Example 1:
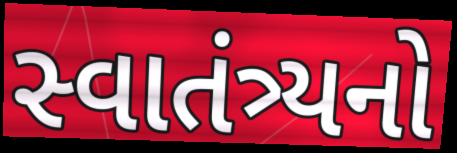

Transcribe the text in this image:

સ્વાતંત્ર્યનો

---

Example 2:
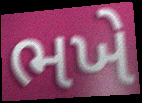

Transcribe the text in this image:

ભખે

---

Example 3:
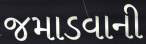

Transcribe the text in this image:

જમાડવાની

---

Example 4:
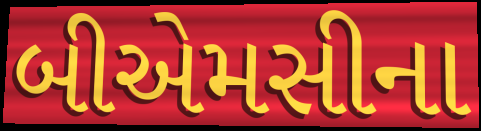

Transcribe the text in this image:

બીએમસીના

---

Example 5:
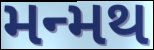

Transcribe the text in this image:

મન્મથ